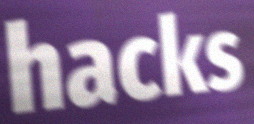
hacks